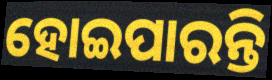
ହୋଇପାରନ୍ତି